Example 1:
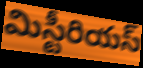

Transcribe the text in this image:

మిస్టీరియస్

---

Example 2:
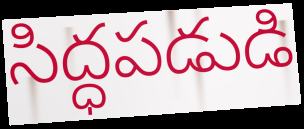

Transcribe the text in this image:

సిద్ధపడుడి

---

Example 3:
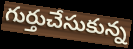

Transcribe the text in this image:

గుర్తుచేసుకున్న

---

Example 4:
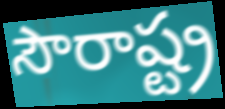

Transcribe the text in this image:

సౌరాష్ట్ర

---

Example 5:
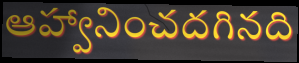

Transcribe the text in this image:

ఆహ్వానించదగినది